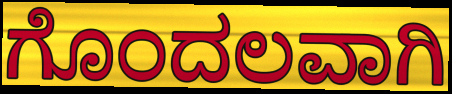
ಗೊಂದಲವಾಗಿ